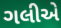
ગલીએ